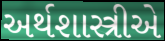
અર્થશાસ્ત્રીએ